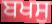
ਬਖਸੁ